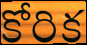
కోరిక